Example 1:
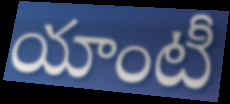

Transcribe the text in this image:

యాంటీ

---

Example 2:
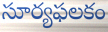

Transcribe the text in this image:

సూర్యఫలకం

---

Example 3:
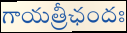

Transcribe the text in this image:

గాయత్రీఛందః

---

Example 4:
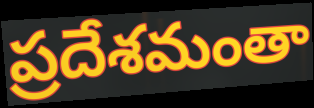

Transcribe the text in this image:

ప్రదేశమంతా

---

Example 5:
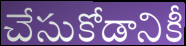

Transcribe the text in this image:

చేసుకోడానికీ